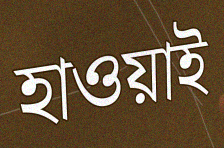
হাওয়াই